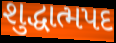
શુદ્ધાત્મપદ